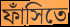
ফাঁসিতে